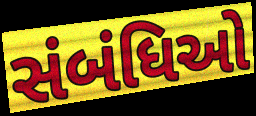
સંબંધિઓ